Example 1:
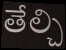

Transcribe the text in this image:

తేల్చి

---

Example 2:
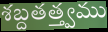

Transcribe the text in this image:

శబ్దతత్త్వము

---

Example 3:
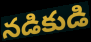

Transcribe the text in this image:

నడికుడి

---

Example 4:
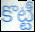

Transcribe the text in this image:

కొట్టీ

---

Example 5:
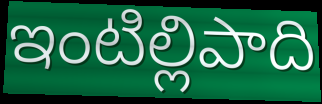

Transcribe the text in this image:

ఇంటిల్లిపాది